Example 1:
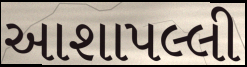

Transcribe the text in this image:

આશાપલ્લી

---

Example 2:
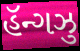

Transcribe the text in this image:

હૅન્ગઝુ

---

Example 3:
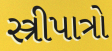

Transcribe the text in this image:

સ્ત્રીપાત્રો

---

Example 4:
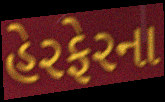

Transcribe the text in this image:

હેરફેરના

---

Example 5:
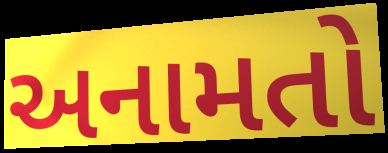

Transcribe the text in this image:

અનામતો